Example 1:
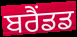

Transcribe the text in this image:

ਬਰੈਂਡਡ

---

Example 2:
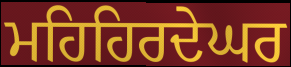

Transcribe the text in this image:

ਮਹਿਹਿਰਦੇਘਰ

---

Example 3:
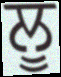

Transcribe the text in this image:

ਲੂ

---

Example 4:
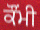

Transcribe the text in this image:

ਕੌਂਮੀ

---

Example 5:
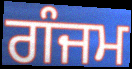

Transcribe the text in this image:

ਗੰਜਮ